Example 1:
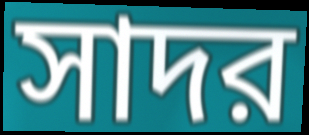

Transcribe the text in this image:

সাদর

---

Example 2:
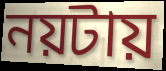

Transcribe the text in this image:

নয়টায়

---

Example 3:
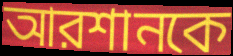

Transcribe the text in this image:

আরশানকে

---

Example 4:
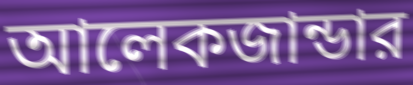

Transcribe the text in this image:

আলেকজান্ডার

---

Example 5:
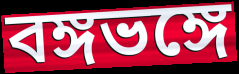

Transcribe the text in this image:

বঙ্গভঙ্গে